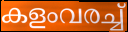
കളംവരച്ച്